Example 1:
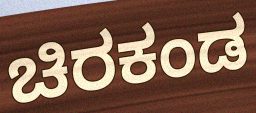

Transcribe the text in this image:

ಚಿರಕಂಡ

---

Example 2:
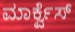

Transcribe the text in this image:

ಮಾರ್ಕ್ವೆಸ್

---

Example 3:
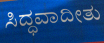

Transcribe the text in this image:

ಸಿದ್ಧವಾದೀತು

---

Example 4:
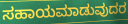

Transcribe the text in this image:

ಸಹಾಯಮಾಡುವುದರ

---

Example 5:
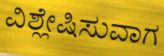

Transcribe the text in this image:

ವಿಶ್ಲೇಷಿಸುವಾಗ